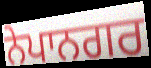
ਨੇਪਾਨਗਰ